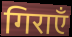
गिराएँ